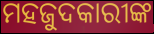
ମହଜୁଦକାରୀଙ୍କ